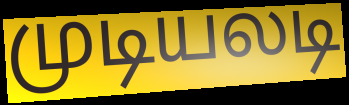
முடியலடி